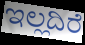
ಇಲ್ಲದಿರೆ